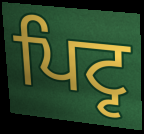
ਪਿਟ੍ਟ